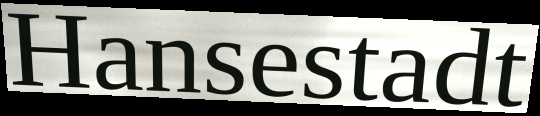
Hansestadt